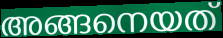
അങ്ങനെയത്